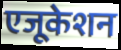
एजूकेशन